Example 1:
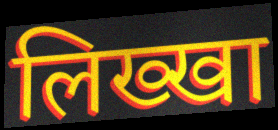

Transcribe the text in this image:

लिख्खा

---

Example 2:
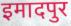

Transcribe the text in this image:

इमादपुर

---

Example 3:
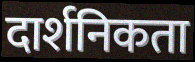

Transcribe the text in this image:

दार्शनिकता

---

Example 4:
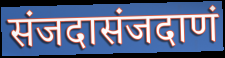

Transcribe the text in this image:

संजदासंजदाणं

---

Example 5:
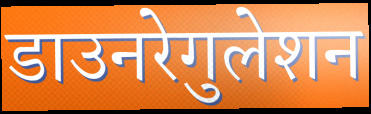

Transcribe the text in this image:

डाउनरेगुलेशन